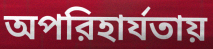
অপরিহার্যতায়